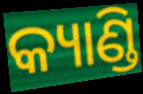
କ୍ୟାଣ୍ଡି